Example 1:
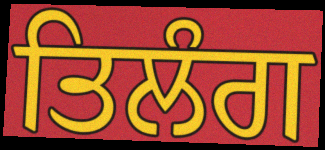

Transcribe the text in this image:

ਤਿਲੰਗ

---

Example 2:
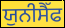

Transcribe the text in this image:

ਯੁਨੀਸੈੱਫ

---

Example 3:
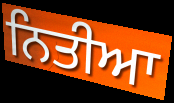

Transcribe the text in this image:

ਨਿਤੀਆ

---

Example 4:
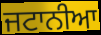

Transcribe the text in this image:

ਜਟਾਨੀਆ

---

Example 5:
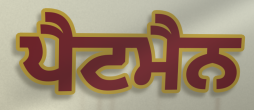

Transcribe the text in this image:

ਪੈਟਮੈਨ